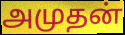
அமுதன்